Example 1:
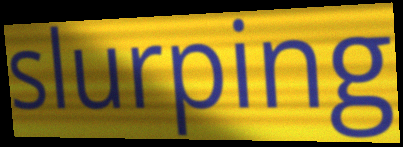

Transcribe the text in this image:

slurping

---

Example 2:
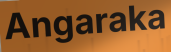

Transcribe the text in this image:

Angaraka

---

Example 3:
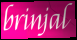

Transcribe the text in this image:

brinjal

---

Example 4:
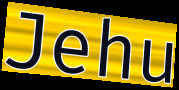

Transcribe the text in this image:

Jehu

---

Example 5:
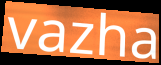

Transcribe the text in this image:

vazha